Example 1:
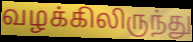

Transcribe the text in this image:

வழக்கிலிருந்து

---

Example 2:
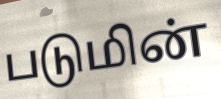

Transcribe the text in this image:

படுமின்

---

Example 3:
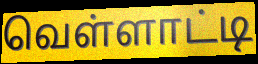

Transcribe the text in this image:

வெள்ளாட்டி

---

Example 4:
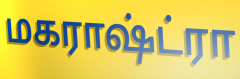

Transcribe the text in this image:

மகராஷ்ட்ரா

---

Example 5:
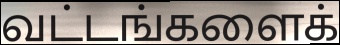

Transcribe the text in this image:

வட்டங்களைக்